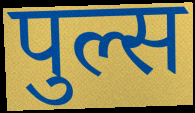
पुल्स